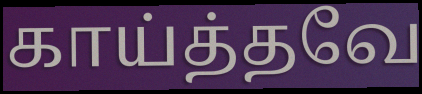
காய்த்தவே